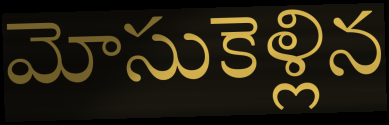
మోసుకెళ్లిన